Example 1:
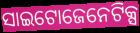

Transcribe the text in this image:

ସାଇଟୋଜେନେଟିକ୍ସ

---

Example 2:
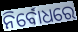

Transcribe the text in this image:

ନିର୍ବୋଧରେ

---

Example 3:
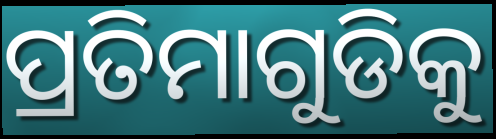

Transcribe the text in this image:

ପ୍ରତିମାଗୁଡିକୁ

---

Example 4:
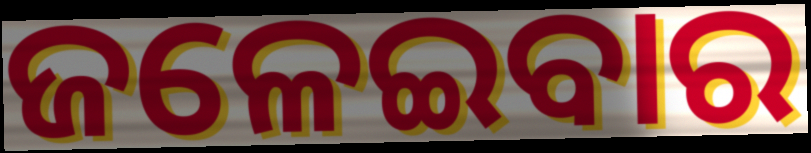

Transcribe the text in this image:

ଜଳେଇବାର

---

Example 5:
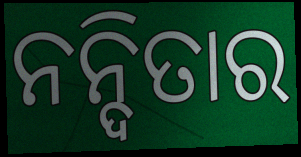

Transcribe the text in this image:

ନନ୍ଦିତାର